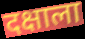
दक्षाला